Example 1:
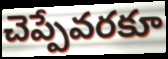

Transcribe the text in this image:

చెప్పేవరకూ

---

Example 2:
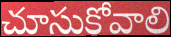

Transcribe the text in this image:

చూసుకోవాలి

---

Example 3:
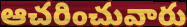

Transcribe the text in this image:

ఆచరించువారు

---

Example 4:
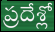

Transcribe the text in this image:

ప్రదేశ్లో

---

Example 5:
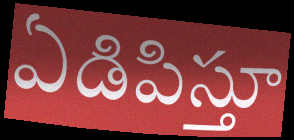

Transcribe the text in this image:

ఏడిపిస్తూ